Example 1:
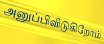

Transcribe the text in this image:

அனுப்பிவிடுகிறோம்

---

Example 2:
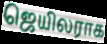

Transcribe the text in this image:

ஜெயிலராக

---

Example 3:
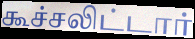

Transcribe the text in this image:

கூச்சலிட்டார்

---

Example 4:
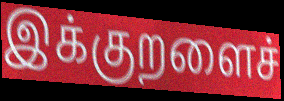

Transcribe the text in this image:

இக்குறளைச்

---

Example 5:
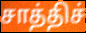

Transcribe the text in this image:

சாத்திச்